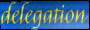
delegation